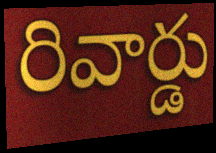
రివార్డు